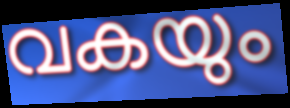
വകയും